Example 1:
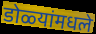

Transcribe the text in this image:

डोळ्यांमधले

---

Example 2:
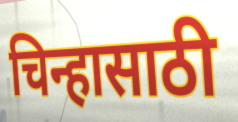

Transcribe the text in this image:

चिन्हासाठी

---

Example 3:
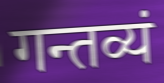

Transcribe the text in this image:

गन्तव्यं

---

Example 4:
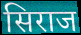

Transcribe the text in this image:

सिराज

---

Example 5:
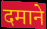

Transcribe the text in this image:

दमाने